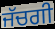
ਜੱਚਗੀ